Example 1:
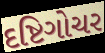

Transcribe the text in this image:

દષ્ટિગોચર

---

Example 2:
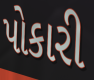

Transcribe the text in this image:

પોકારી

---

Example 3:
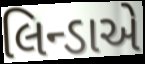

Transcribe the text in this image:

લિન્ડાએ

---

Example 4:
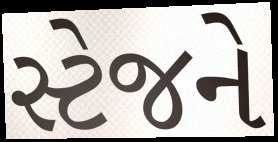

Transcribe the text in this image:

સ્ટેજને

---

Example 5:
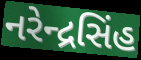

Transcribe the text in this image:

નરેન્દ્રસિંહ